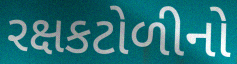
રક્ષકટોળીનો